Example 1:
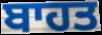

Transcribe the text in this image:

ਬਾਹਤ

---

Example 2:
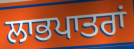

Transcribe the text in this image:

ਲਾਭਪਾਤਰਾਂ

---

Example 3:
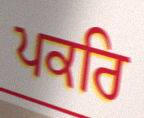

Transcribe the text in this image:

ਪਕਰਿ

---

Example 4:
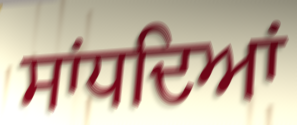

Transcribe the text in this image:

ਸਾਂਧਦਿਆਂ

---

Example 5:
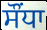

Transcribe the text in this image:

ਸੌਂਧਾ